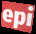
epi